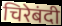
चिरेबंदी